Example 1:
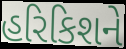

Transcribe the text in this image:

હરિકિશને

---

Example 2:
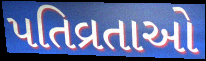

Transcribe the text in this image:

પતિવ્રતાઓ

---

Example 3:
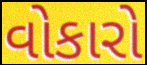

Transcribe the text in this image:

વોકારો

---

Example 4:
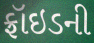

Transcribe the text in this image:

ફ્રૉઇડની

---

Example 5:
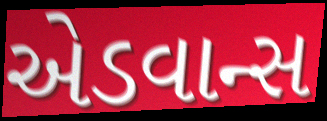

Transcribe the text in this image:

એડવાન્સ